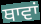
ਥਾਵਾਂ